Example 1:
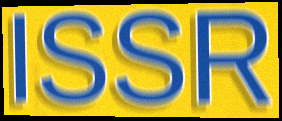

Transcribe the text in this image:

ISSR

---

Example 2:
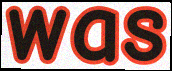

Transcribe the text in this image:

was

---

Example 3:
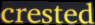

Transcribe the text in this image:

crested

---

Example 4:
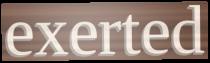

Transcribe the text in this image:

exerted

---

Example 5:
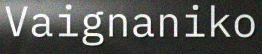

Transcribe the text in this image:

Vaignaniko